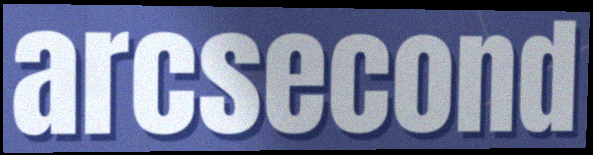
arcsecond